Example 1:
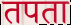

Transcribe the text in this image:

तपता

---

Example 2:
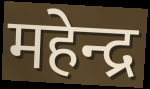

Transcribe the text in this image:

महेन्‍द्र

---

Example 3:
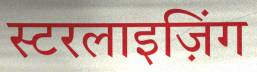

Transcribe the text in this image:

स्टरलाइज़िंग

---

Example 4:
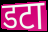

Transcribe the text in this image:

डटा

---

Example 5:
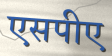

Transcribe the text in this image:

एसपीए